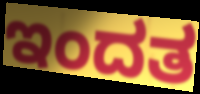
ಇಂದತ